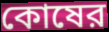
কোষের